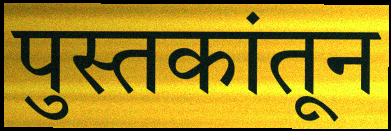
पुस्तकांतून